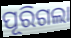
ପୂରିଗଲା